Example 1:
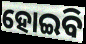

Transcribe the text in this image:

ହୋଇିବ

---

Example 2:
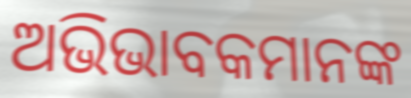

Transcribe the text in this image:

ଅଭିଭାବକମାନଙ୍କ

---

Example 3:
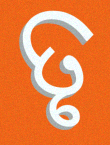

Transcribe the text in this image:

ତୃ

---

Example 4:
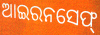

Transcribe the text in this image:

ଆଇରନସେଫ୍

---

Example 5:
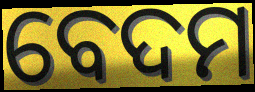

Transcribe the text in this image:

ବେଦମ